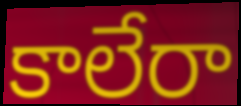
కాలేరా